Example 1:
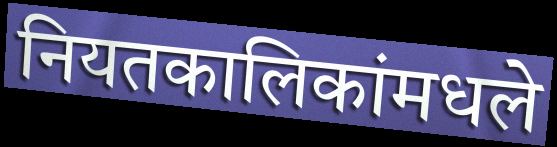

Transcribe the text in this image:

नियतकालिकांमधले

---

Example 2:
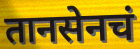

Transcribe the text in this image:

तानसेनचं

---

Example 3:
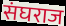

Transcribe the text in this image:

संघराज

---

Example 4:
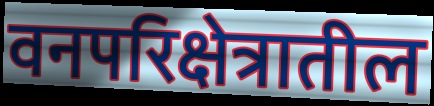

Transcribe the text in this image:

वनपरिक्षेत्रातील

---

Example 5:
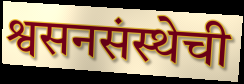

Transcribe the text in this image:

श्वसनसंस्थेची